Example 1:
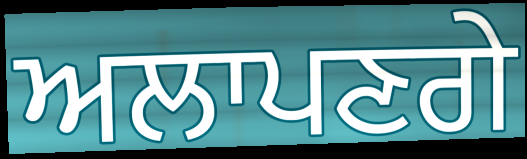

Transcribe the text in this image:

ਅਲਾਪਣਗੇ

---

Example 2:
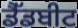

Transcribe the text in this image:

ਡੈੱਡਬੀਟ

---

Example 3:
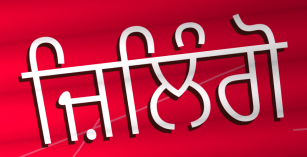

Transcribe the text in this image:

ਜ਼ਿਲਿੰਗੋ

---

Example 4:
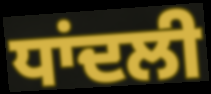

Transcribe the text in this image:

ਧਾਂਦਲੀ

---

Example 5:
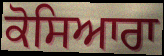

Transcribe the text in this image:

ਕੋਸਿਆਰਾ